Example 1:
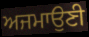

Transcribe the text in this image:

ਅਜਮਾਉਣੀ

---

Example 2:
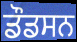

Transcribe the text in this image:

ਡੌਡਸਨ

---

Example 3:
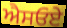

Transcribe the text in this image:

ਐਸਓਏ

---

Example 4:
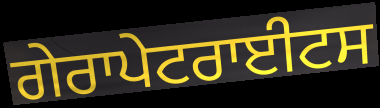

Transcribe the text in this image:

ਗੇਰਾਪੇਟਰਾਈਟਸ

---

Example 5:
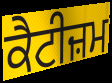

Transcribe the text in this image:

ਕੈਟੀਜ਼ਮ